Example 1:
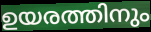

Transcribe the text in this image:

ഉയരത്തിനും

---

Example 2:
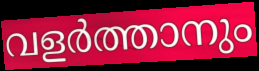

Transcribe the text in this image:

വളർത്താനും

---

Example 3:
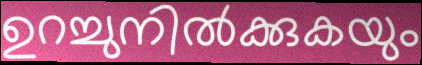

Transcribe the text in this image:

ഉറച്ചുനിൽക്കുകയും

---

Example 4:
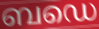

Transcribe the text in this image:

ബഡെ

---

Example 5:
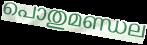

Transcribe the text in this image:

പൊതുമണ്ഡല